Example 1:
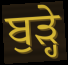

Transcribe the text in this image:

ਬੁੜ੍ਹੇ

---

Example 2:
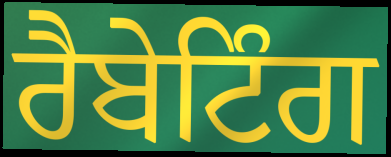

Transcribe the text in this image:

ਰੈਬੇਟਿੰਗ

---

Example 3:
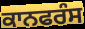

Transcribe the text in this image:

ਕਾਨਫਰੰਸ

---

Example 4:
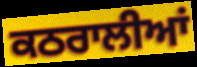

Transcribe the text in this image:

ਕਠਰਾਲੀਆਂ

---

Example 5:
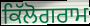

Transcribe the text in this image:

ਕਿੱਲੋਗਰਾਮ